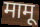
मामू